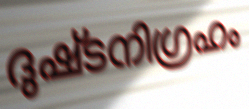
ദുഷ്‌ടനിഗ്രഹം